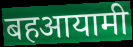
बहआयामी